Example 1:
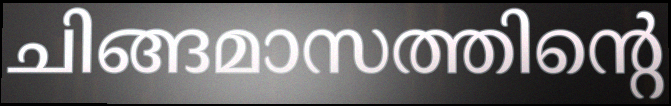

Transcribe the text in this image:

ചിങ്ങമാസത്തിന്റെ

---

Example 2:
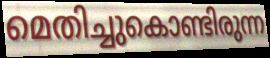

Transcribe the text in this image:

മെതിച്ചുകൊണ്ടിരുന്ന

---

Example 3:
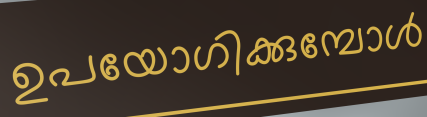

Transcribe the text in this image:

ഉപയോഗിക്കുമ്പോൾ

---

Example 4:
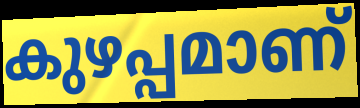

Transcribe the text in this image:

കുഴപ്പമാണ്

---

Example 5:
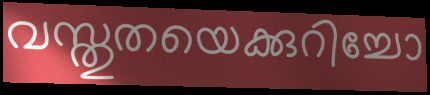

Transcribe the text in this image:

വസ്തുതയെക്കുറിച്ചോ